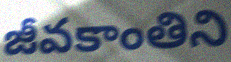
జీవకాంతిని